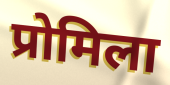
प्रोमिला